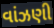
વાંઝણી